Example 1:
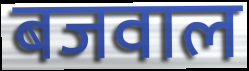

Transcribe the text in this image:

बजवाल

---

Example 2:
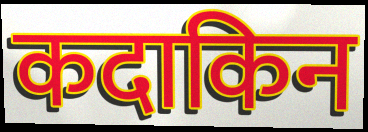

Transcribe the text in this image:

कदाकिन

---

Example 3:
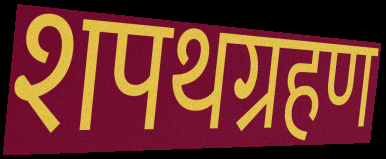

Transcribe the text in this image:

शपथग्रहण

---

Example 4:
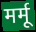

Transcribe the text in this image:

मर्मू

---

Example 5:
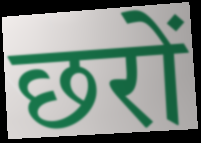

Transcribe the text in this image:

छरों